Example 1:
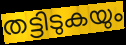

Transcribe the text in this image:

തട്ടിടുകയും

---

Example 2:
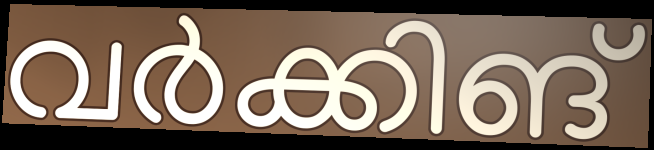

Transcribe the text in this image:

വർക്കിങ്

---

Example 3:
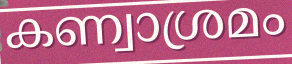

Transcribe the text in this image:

കണ്വാശ്രമം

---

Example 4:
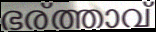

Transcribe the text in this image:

ഭര്ത്താവ്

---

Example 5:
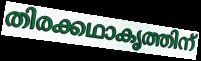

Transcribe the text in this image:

തിരക്കഥാകൃത്തിന്